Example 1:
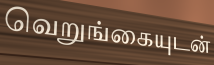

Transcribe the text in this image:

வெறுங்கையுடன்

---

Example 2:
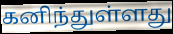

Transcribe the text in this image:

கனிந்துள்ளது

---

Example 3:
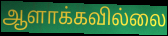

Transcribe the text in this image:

ஆளாக்கவில்லை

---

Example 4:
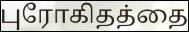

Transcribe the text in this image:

புரோகிதத்தை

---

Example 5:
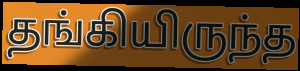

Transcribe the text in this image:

தங்கியிருந்த